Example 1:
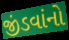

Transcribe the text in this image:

જીંડવાંનો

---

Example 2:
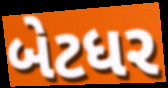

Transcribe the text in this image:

બેટધર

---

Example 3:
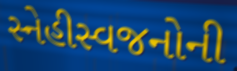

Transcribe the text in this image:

સ્નેહીસ્વજનોની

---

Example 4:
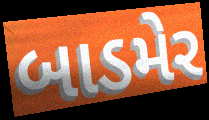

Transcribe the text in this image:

બાડમેર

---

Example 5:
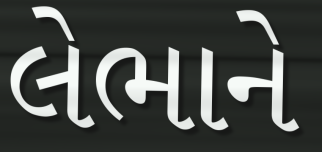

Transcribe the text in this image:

લેભાને